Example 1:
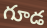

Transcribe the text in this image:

గూడ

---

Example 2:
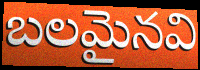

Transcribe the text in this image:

బలమైనవి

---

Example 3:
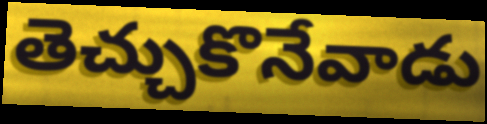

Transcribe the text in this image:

తెచ్చుకొనేవాడు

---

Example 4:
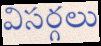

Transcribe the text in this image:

విసర్గలు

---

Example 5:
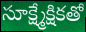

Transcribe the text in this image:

సూక్ష్మేక్షికతో